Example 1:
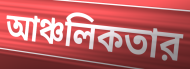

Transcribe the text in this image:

আঞ্চলিকতার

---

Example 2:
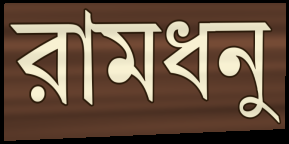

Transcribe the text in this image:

রামধনু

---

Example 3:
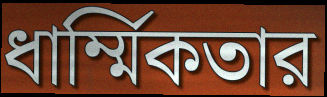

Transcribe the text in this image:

ধার্ম্মিকতার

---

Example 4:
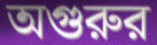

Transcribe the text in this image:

অগুরুর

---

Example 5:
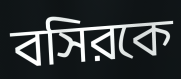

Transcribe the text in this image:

বসিরকে